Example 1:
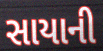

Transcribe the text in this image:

સાયાની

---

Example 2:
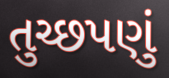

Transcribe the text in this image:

તુચ્છપણું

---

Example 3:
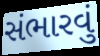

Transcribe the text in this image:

સંભારવું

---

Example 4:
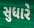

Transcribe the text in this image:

સુધારે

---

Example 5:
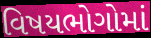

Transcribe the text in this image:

વિષયભોગોમાં